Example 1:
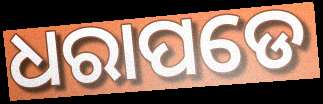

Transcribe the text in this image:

ଧରାପଡେ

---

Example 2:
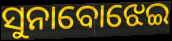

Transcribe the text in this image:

ସୁନାବୋଝେଇ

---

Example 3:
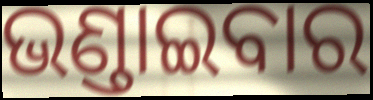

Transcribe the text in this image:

ଭଣ୍ଡାଇବାର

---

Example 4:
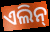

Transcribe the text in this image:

ଏଲିନ୍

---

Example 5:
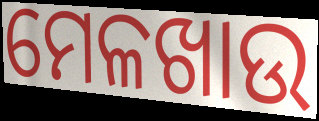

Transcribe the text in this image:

ମେଳଖାଉ